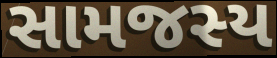
સામજસ્ય